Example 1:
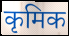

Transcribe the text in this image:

कृमिक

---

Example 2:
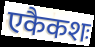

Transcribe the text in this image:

एकैकशः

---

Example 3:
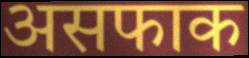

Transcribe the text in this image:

असफाक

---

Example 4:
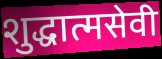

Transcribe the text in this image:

शुद्धात्मसेवी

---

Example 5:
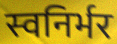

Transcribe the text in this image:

स्वनिर्भर